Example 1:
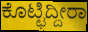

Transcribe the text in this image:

ಕೊಟ್ಟಿದ್ದೀರಾ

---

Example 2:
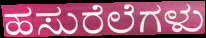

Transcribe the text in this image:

ಹಸುರೆಲೆಗಳು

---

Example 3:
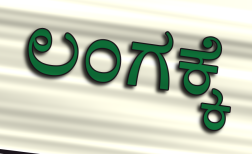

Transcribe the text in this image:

ಲಂಗಕ್ಕೆ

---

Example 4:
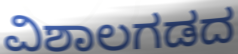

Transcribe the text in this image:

ವಿಶಾಲಗಡದ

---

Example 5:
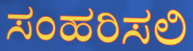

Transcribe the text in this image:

ಸಂಹರಿಸಲಿ